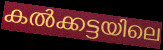
കൽക്കട്ടയിലെ